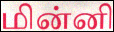
மின்னி